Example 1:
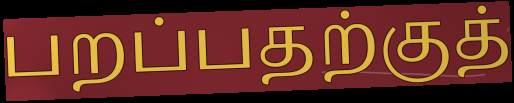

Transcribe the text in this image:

பறப்பதற்குத்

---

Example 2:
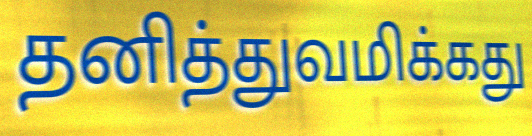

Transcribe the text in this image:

தனித்துவமிக்கது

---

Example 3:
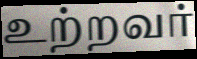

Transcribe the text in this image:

உற்றவர்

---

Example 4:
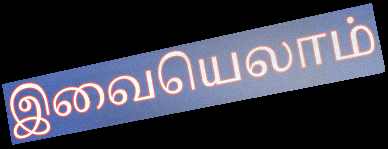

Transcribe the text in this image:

இவையெலாம்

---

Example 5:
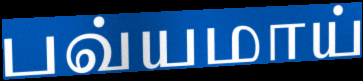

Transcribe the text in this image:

பவ்யமாய்